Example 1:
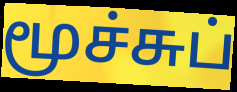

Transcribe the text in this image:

மூச்சுப்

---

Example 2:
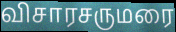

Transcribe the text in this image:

விசாரசருமரை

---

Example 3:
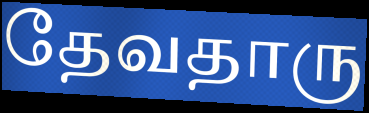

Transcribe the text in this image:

தேவதாரு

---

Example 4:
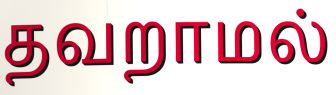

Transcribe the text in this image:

தவறாமல்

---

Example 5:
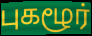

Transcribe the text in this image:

புகழூர்